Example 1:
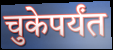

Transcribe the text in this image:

चुकेपर्यंत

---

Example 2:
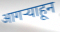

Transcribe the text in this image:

आगऱ्याहून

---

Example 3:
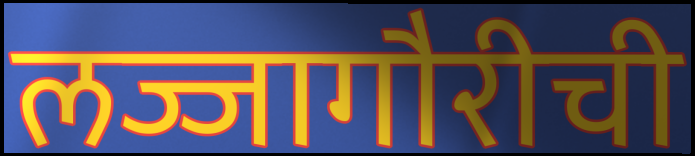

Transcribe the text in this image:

लज्जागौरीची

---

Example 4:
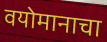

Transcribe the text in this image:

वयोमानाचा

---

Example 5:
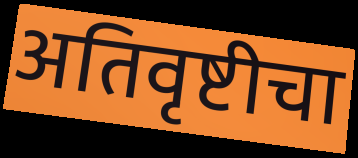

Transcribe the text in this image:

अतिवृष्टीचा